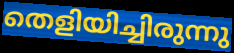
തെളിയിച്ചിരുന്നു